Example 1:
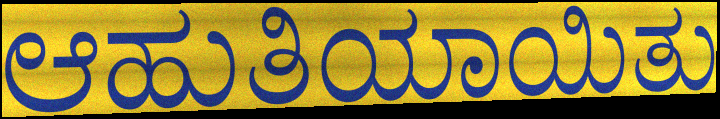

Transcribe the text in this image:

ಆಹುತಿಯಾಯಿತು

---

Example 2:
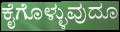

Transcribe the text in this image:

ಕೈಗೊಳ್ಳುವುದೂ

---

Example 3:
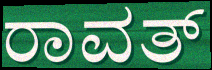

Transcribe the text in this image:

ರಾವತ್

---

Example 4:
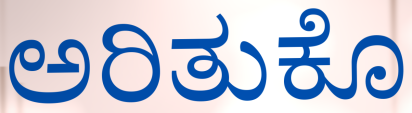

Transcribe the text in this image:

ಅರಿತುಕೊ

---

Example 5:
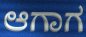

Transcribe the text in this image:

ಆಗಾಗ